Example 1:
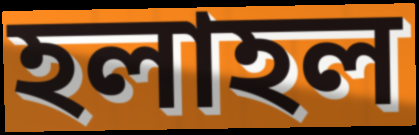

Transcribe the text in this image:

হলাহল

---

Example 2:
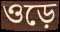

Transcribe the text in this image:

ওড়ে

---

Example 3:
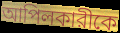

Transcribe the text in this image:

আপিলকারীকে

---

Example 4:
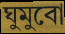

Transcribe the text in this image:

ঘুমুবো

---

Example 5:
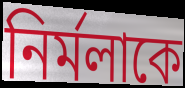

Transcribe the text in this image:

নির্মলাকে